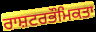
ਰਾਸ਼ਟਰਭੌਮਿਕਤਾ